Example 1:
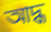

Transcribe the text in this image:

আদ্ধ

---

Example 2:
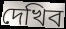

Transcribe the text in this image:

দেখিব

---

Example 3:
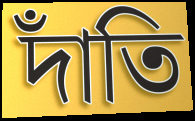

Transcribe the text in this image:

দাঁতি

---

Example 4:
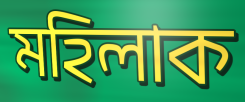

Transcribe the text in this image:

মহিলাক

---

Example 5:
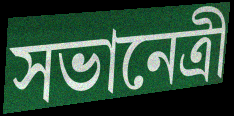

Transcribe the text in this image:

সভানেত্ৰী